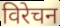
विरेचन